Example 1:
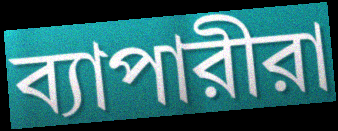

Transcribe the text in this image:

ব্যাপারীরা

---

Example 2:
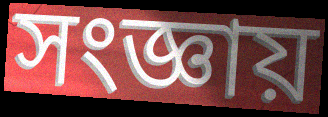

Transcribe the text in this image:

সংজ্ঞায়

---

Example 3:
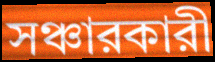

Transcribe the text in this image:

সঞ্চারকারী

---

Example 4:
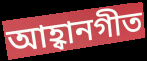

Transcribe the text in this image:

আহ্বানগীত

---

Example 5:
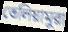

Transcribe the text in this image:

তেলিয়ামুরা